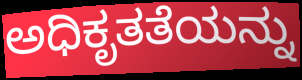
ಅಧಿಕೃತತೆಯನ್ನು